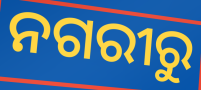
ନଗରୀରୁ